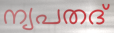
ന്യപതദ്